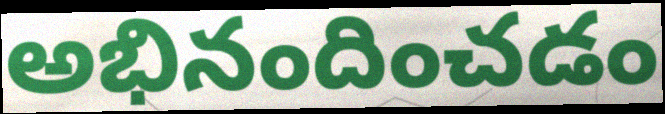
అభినందించడం